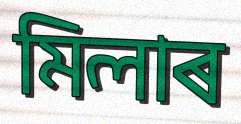
মিলাৰ